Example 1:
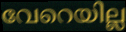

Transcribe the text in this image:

വേറെയില്ല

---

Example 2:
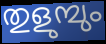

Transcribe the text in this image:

തുളുമ്പും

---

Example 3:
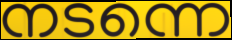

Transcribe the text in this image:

നടന്നെ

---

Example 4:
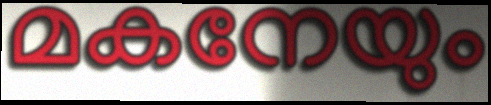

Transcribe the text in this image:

മകനേയും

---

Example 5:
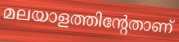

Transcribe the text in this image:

മലയാളത്തിന്റേതാണ്